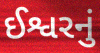
ઈશ્વરનું